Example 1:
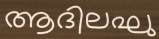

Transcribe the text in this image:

ആദിലഘു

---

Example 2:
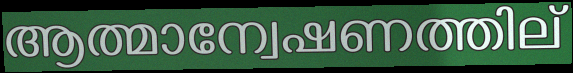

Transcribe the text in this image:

ആത്മാന്വേഷണത്തില്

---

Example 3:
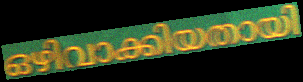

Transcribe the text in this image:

ഒഴിവാക്കിയതായി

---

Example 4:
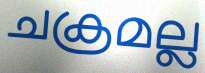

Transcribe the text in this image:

ചക്രമല്ല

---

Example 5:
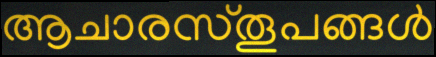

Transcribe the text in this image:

ആചാരസ്തൂപങ്ങൾ